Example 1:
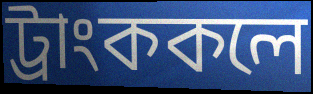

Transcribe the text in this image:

ট্রাংককলে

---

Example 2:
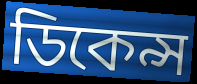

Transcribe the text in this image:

ডিকেন্স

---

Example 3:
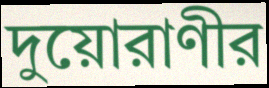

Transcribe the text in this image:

দুয়োরাণীর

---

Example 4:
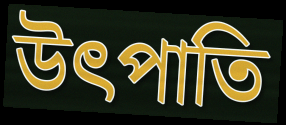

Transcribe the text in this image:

উৎপাতি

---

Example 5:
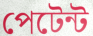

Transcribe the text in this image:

পেটেন্ট